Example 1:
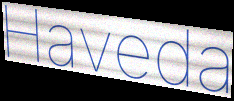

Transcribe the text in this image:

Haveda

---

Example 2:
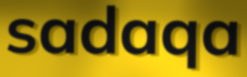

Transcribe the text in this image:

sadaqa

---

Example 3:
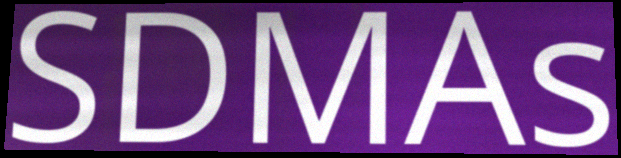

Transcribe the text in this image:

SDMAs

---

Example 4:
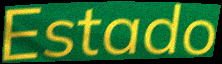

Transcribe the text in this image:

Estado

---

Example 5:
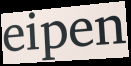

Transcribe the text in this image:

eipen